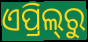
ଏପ୍ରିଲ୍‍ରୁ